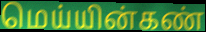
மெய்யின்கண்